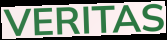
VERITAS